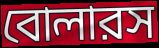
বোলারস